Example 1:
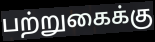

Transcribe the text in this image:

பற்றுகைக்கு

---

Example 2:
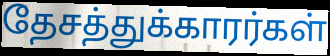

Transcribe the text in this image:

தேசத்துக்காரர்கள்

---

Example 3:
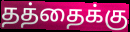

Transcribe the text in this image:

தத்தைக்கு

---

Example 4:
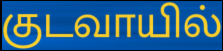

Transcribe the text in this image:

குடவாயில்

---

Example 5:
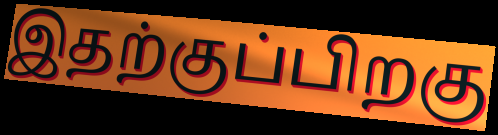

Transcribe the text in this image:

இதற்குப்பிறகு